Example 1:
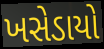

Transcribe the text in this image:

ખસેડાયો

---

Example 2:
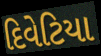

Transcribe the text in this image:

દિવેટિયા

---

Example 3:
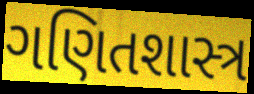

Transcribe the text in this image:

ગણિતશાસ્ત્ર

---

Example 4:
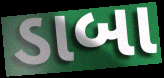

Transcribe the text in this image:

ડાબા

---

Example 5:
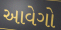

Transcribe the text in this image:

આવેગો